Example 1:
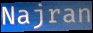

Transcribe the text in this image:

Najran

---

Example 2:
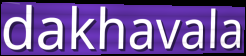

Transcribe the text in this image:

dakhavala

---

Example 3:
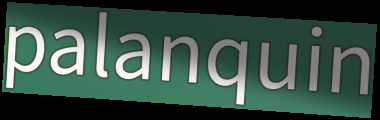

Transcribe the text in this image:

palanquin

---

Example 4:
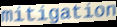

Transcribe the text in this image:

mitigation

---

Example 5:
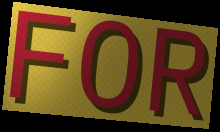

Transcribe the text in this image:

FOR